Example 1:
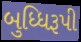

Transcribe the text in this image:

બુધ્ધિરૂપી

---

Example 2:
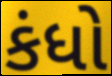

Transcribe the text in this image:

કંધો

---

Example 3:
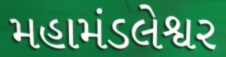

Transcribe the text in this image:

મહામંડલેશ્વર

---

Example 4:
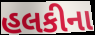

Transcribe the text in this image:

હલકીના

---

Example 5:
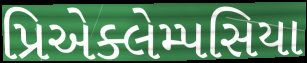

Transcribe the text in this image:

પ્રિએક્લેમ્પસિયા